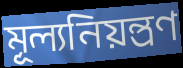
মূল্যনিয়ন্ত্রণ